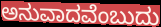
ಅನುವಾದವೆಂಬುದು